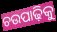
ଚଉପାଢ଼ିକୁ